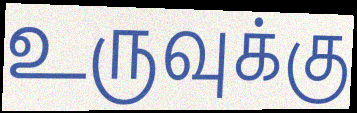
உருவுக்கு